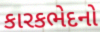
કારકભેદનો